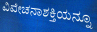
ವಿವೇಚನಾಶಕ್ತಿಯನ್ನೂ